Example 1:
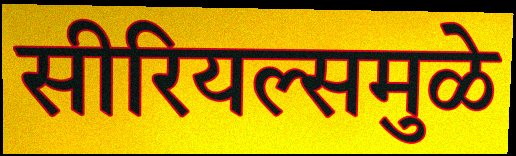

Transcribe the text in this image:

सीरियल्समुळे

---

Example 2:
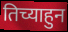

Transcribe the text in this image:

तिच्याहुन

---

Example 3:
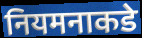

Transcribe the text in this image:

नियमनाकडे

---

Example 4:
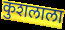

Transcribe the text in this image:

कुशलाला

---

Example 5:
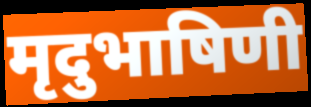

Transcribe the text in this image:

मृदुभाषिणी